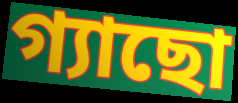
গ্যাছো